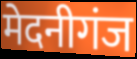
मेदनीगंज